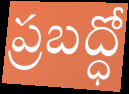
ప్రబద్ధో